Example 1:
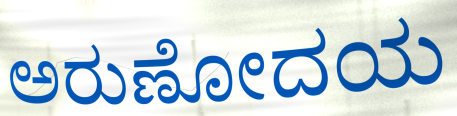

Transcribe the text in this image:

ಅರುಣೋದಯ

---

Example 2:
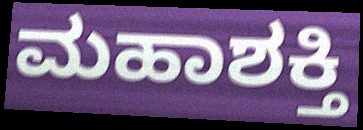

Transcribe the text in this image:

ಮಹಾಶಕ್ತಿ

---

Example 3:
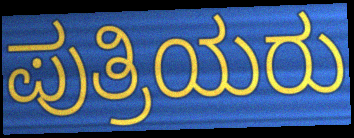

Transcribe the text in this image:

ಪುತ್ರಿಯರು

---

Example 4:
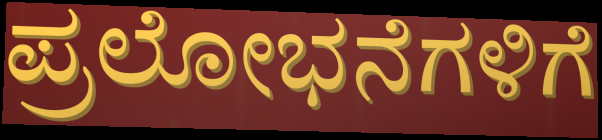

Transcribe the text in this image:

ಪ್ರಲೋಭನೆಗಳಿಗೆ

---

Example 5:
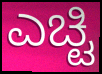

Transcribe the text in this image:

ಎಚ್ಟಿ